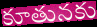
కూతునకు